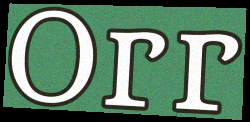
Orr